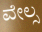
ವೇಲ್ಸ